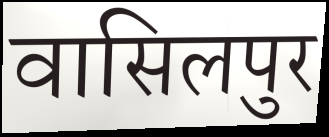
वासिलपुर